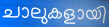
ചാലുകളായി